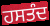
ਹਸਤੰਦ